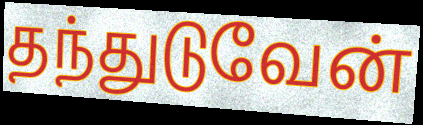
தந்துடுவேன்